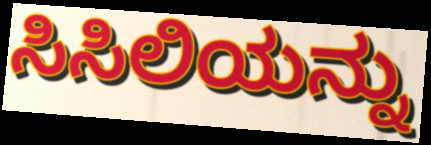
ಸಿಸಿಲಿಯನ್ನು